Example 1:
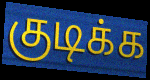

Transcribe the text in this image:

குடிக்க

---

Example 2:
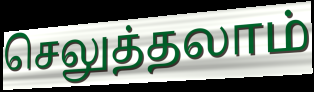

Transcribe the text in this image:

செலுத்தலாம்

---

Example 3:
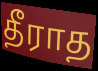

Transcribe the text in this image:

தீராத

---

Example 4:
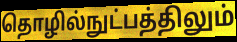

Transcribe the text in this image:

தொழில்நுட்பத்திலும்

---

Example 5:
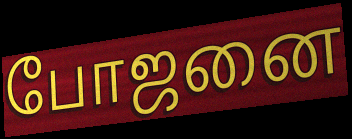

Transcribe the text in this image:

போஜனை